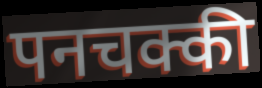
पनचक्की